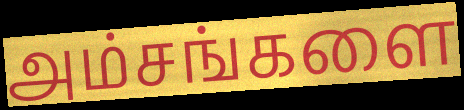
அம்சங்களை